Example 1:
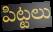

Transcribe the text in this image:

పిట్టలు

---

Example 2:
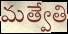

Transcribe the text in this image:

మత్వేతి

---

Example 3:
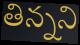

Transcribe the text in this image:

తిన్నని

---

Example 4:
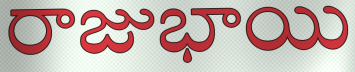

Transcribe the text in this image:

రాజుభాయి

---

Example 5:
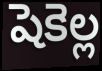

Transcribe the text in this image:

షెకెల్ల